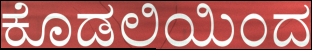
ಕೊಡಲಿಯಿಂದ